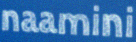
naamini